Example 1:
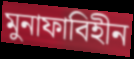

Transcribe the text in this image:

মুনাফাবিহীন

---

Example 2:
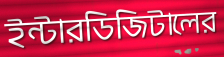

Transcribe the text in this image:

ইন্টারডিজিটালের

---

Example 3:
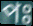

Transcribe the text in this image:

পঃ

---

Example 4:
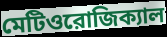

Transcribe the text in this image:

মেটিওরোজিক্যাল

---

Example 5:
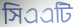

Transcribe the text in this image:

সিএএটি